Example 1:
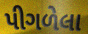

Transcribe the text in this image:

પીગળેલા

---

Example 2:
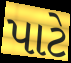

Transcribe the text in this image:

પાટે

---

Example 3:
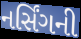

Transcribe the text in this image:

નર્સિંગની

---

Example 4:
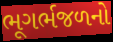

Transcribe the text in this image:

ભૂગર્ભજળનો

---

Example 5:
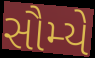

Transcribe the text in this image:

સૌમ્યે